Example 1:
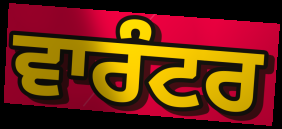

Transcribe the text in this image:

ਵਾਰੰਟਰ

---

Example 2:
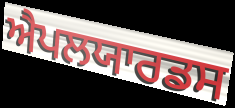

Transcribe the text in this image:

ਐਪਲਯਾਰਡਸ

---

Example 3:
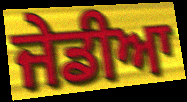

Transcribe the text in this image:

ਜੇਡੀਆ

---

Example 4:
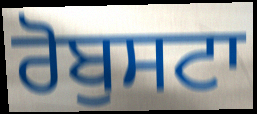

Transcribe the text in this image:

ਰੋਬੁਸਟਾ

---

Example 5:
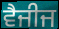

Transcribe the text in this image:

ਵੈਜੀਜ